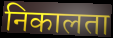
निकालता